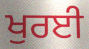
ਖੁਰਈ